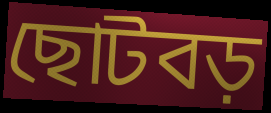
ছোটবড়